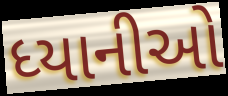
ધ્યાનીઓ